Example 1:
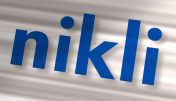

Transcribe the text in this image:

nikli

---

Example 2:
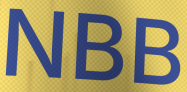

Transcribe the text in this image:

NBB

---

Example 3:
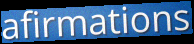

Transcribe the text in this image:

afirmations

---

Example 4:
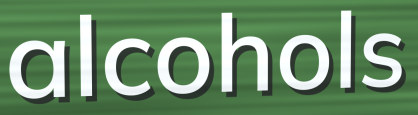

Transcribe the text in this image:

alcohols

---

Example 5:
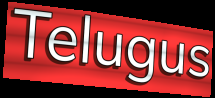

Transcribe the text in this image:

Telugus